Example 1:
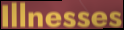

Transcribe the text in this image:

Illnesses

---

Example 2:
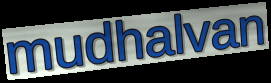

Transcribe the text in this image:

mudhalvan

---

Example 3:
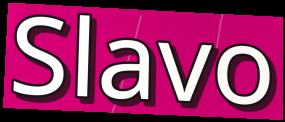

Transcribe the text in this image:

Slavo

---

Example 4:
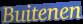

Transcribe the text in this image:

Buitenen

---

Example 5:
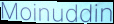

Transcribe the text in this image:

Moinuddin